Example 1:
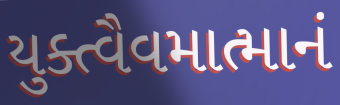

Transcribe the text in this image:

યુક્ત્વૈવમાત્માનં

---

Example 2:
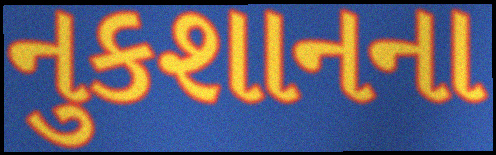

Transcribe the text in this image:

નુકશાનના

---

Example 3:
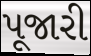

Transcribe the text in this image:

પૂજારી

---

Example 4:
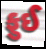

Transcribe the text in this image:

ફુઈ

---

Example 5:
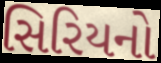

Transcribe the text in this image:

સિરિયનો